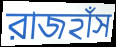
রাজহাঁস